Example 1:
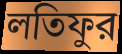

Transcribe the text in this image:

লতিফুর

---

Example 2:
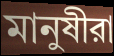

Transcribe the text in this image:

মানুষীরা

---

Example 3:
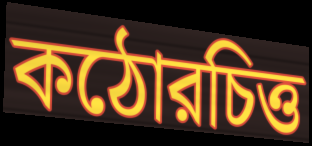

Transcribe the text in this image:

কঠোরচিত্ত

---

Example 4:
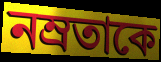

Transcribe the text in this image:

নম্রতাকে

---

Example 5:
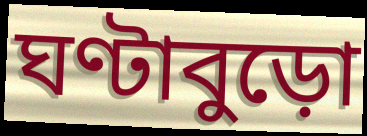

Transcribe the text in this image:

ঘণ্টাবুড়ো